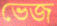
ভেজ